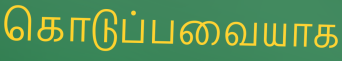
கொடுப்பவையாக